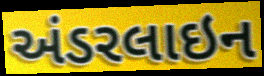
અંડરલાઇન